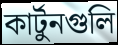
কার্টুনগুলি